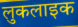
लुकलाइक